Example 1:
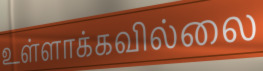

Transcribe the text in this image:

உள்ளாக்கவில்லை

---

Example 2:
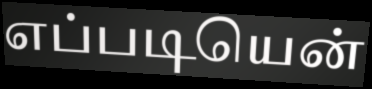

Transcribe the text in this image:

எப்படியென்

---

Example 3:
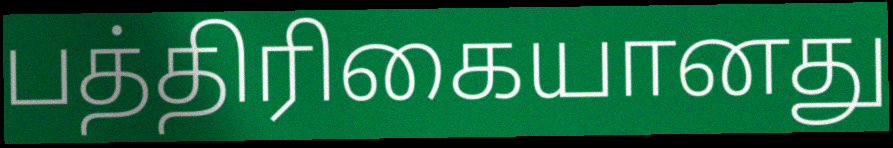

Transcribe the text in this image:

பத்திரிகையானது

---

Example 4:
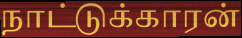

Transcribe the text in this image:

நாட்டுக்காரன்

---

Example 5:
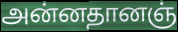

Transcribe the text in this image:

அன்னதானஞ்